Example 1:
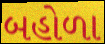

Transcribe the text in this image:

બહોળા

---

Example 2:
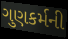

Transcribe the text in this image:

ગુણકર્મની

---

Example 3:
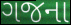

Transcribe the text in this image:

ગજના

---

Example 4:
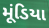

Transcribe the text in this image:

મૂંડિયા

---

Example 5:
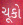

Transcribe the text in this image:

ચૂકો